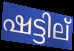
ഷട്ടില്